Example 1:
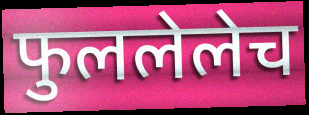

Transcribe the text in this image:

फुललेलेच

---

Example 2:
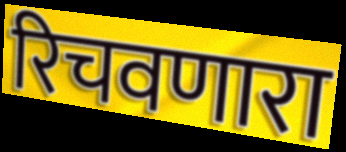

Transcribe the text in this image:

रिचवणारा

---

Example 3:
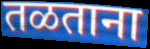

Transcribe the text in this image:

तळताना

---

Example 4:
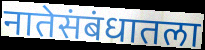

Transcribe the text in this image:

नातेसंबंधातला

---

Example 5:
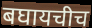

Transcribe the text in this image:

बघायचीच